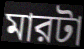
মারটা